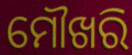
ମୌଖରି